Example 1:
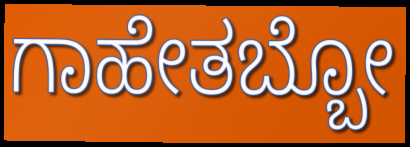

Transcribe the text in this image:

ಗಾಹೇತಬ್ಬೋ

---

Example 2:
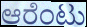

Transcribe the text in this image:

ಆರೆಂಟು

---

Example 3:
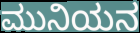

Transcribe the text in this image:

ಮುನಿಯನ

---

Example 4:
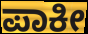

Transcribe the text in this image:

ಪಾಕೀ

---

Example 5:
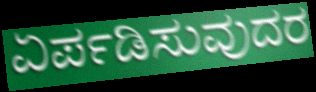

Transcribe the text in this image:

ಏರ್ಪಡಿಸುವುದರ